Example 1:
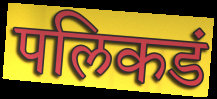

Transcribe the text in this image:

पलिकडं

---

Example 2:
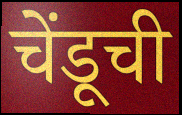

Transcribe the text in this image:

चेंडूची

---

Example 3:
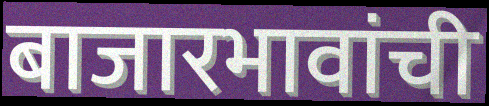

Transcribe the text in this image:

बाजारभावांची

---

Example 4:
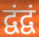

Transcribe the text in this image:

द्वंद्वं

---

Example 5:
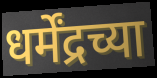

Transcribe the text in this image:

धर्मेंद्रच्या